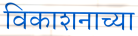
विकाशनाच्या